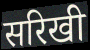
सरिखी